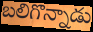
బలిగొన్నాడు